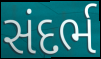
સંદર્ભ